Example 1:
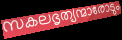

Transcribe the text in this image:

സകലഭൃത്യന്മാരോടും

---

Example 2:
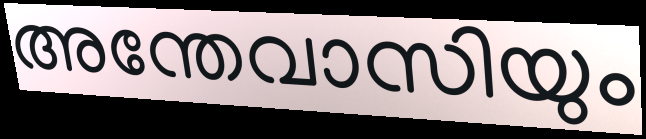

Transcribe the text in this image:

അന്തേവാസിയും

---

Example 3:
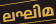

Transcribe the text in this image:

ലഘിമ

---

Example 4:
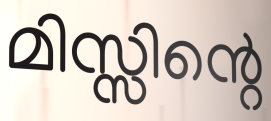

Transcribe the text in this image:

മിസ്സിന്റെ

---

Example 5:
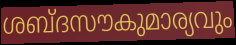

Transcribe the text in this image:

ശബ്ദസൗകുമാര്യവും